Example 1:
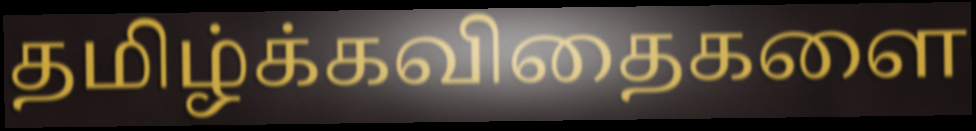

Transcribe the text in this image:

தமிழ்க்கவிதைகளை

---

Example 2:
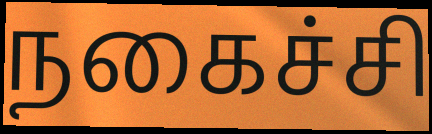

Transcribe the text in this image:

நகைச்சி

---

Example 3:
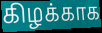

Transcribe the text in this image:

கிழக்காக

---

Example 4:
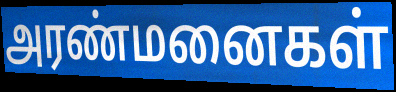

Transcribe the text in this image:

அரண்மனைகள்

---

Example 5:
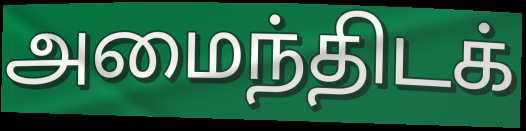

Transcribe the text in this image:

அமைந்திடக்